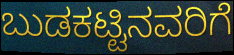
ಬುಡಕಟ್ಟಿನವರಿಗೆ